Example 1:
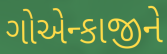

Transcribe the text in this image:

ગોએન્કાજીને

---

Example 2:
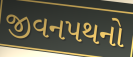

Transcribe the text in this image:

જીવનપથનો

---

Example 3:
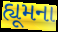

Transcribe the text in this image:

હ્યૂમના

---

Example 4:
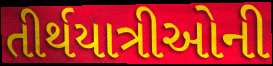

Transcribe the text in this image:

તીર્થયાત્રીઓની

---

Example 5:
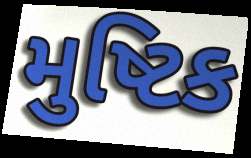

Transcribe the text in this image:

મુષ્ટિક